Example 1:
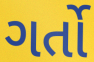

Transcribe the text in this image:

ગર્તો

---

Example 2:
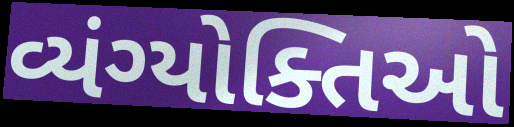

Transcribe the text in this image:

વ્યંગ્યોક્તિઓ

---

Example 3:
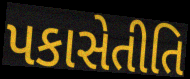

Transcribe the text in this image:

પકાસેતીતિ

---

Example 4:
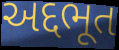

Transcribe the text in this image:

અદ્દભૂત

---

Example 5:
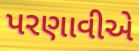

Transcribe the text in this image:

પરણાવીએ